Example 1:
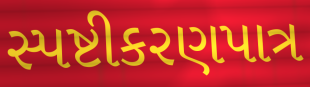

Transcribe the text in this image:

સ્પષ્ટીકરણપાત્ર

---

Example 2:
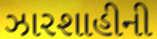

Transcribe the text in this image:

ઝારશાહીની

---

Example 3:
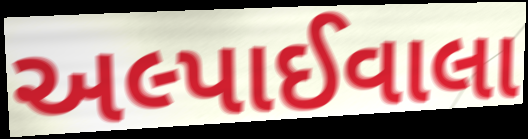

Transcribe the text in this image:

અલ્પાઈવાલા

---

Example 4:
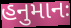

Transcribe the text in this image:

હનુમાનઃ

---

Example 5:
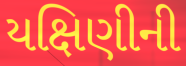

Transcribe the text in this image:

યક્ષિણીની